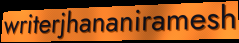
writerjhananiramesh